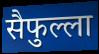
सैफुल्ला